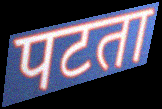
पटता